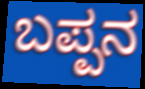
ಬಪ್ಪನ